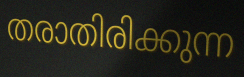
തരാതിരിക്കുന്ന